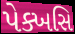
પેક્ખસિ